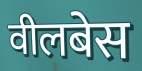
वीलबेस